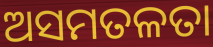
ଅସମତଳତା